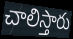
చాలిస్తారు